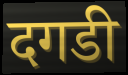
दगडी